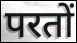
परतों